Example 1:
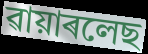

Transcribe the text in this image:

ৱায়াৰলেছ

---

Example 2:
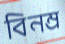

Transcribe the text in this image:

বিনম্ৰ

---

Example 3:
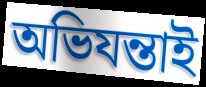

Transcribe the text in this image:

অভিযন্তাই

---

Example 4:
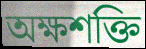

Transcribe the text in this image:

অক্ষশক্তি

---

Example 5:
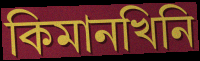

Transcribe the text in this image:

কিমানখিনি